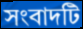
সংবাদটি